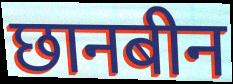
छानबीन